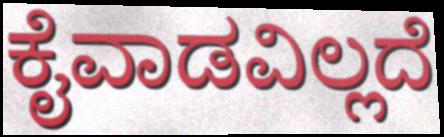
ಕೈವಾಡವಿಲ್ಲದೆ